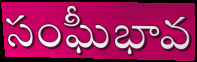
సంఘీభావ